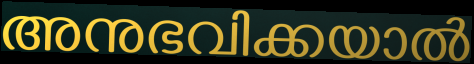
അനുഭവിക്കയാൽ